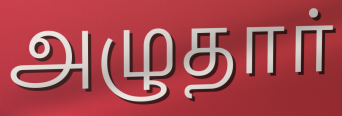
அழுதார்